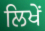
ਲਿਖੇਂ